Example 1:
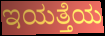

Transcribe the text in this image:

ಇಯತ್ತೆಯ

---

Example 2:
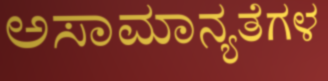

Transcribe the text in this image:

ಅಸಾಮಾನ್ಯತೆಗಳ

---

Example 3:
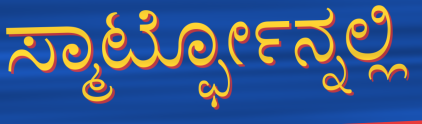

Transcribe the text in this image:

ಸ್ಮಾರ್ಟ್ಫೋನ್ನಲ್ಲಿ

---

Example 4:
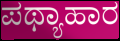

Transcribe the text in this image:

ಪಥ್ಯಾಹಾರ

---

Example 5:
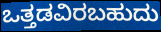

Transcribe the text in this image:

ಒತ್ತಡವಿರಬಹುದು